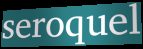
seroquel